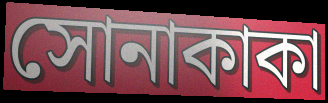
সোনাকাকা